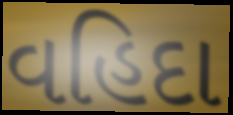
વહિદા